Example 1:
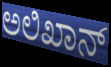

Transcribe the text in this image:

ಅಲಿಖಾನ್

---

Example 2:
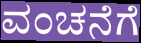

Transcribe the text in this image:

ವಂಚನೆಗೆ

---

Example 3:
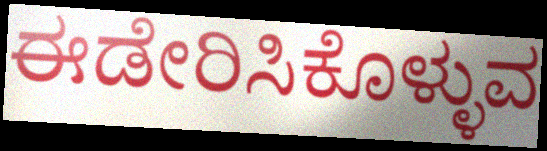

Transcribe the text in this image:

ಈಡೇರಿಸಿಕೊಳ್ಳುವ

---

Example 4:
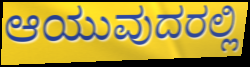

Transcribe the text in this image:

ಆಯುವುದರಲ್ಲಿ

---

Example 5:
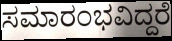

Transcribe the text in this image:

ಸಮಾರಂಭವಿದ್ದರೆ